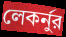
লেকর্নুর